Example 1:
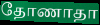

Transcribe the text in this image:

தோணாதா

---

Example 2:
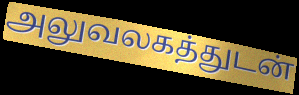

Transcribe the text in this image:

அலுவலகத்துடன்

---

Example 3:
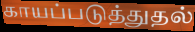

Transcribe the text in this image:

காயப்படுத்துதல்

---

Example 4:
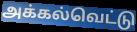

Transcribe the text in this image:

அக்கல்வெட்டு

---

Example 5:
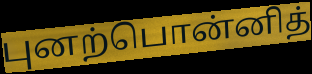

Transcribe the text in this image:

புனற்பொன்னித்